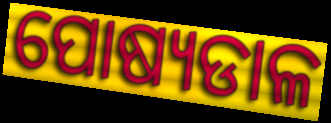
ପୋଷ୍ୟଡାଳ